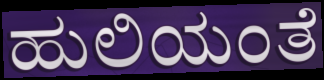
ಹುಲಿಯಂತೆ